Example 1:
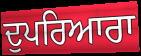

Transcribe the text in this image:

ਦੁਪਰਿਆਰਾ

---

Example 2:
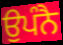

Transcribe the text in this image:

ਉਪੰਨੈ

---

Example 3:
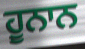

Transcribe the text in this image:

ਹੂਨਾਨ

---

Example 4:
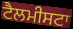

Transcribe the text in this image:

ਟੈਲਮੀਸਟਾ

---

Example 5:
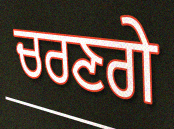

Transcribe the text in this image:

ਚਰਣਗੇ